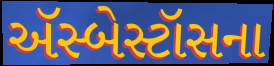
ઍસ્બેસ્ટૉસના